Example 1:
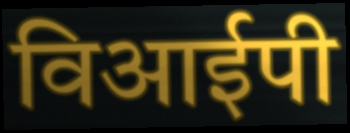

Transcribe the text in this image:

विआईपी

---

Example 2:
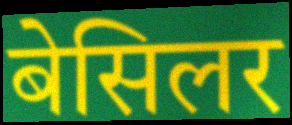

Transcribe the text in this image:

बेसिलर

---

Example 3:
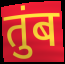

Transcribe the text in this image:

तुंब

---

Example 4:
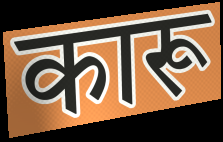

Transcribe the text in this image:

कारू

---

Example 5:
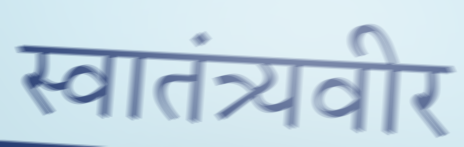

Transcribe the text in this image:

स्वातंत्र्यवीर